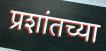
प्रशांतच्या